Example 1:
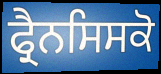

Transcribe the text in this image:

ਫ੍ਰੈਨਸਿਸਕੋ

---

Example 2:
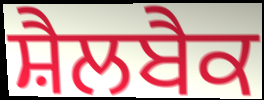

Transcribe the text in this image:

ਸ਼ੈਲਬੈਕ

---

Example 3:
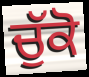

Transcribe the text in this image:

ਚੁੱਕੋ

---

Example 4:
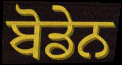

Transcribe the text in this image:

ਬੋਡੇਨ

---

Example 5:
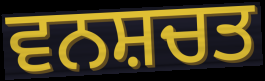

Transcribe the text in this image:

ਵਨਸ਼ਚਤ